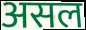
असल